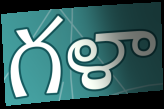
గళా